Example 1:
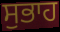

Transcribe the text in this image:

ਸੁਭਾਹ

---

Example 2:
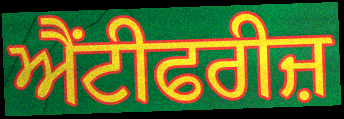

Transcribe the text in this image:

ਐਂਟੀਫਰੀਜ਼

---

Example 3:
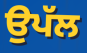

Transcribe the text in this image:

ਉਪੱਲ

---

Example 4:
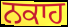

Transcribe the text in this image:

ਨਕਾਹ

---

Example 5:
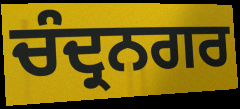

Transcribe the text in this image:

ਚੰਦ੍ਰਨਗਰ